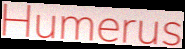
Humerus